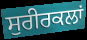
ਸੁਰੀਰਕਲਾਂ